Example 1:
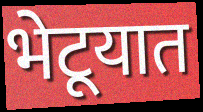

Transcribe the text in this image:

भेटूयात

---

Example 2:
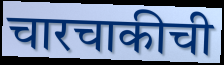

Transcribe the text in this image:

चारचाकीची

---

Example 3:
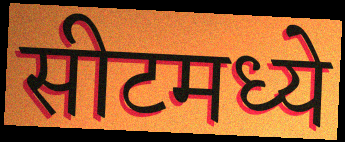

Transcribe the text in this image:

सीटमध्ये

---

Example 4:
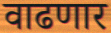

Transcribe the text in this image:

वाढणार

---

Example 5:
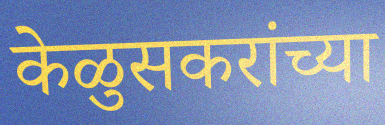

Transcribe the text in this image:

केळुसकरांच्या